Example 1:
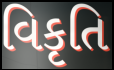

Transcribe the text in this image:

વિકૃતિ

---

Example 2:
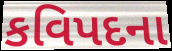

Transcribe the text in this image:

કવિપદના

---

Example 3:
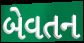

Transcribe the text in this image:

બેવતન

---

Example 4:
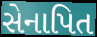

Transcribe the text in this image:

સેનાપિત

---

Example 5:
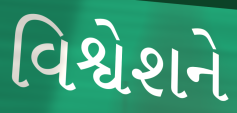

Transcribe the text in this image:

વિશ્વેશને